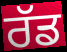
ਰੱਡ